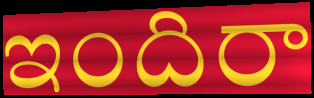
ఇందిరా